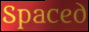
Spaced